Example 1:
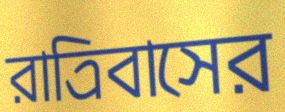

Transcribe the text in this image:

রাত্রিবাসের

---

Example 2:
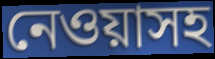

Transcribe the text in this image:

নেওয়াসহ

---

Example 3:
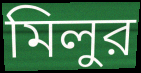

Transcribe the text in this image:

মিলুর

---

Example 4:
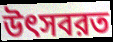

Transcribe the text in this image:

উৎসবরত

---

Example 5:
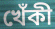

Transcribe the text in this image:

খেঁকী